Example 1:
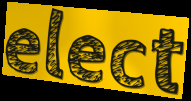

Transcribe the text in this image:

elect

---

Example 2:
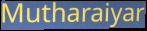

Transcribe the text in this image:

Mutharaiyar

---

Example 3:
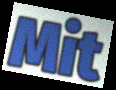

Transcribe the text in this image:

Mit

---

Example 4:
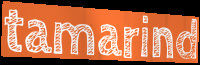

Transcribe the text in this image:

tamarind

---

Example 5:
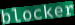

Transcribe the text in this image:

blocker